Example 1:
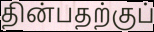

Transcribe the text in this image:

தின்பதற்குப்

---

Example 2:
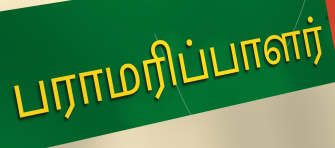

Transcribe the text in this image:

பராமரிப்பாளர்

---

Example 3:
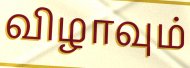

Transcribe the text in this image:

விழாவும்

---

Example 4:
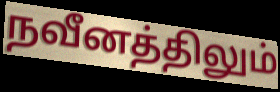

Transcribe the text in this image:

நவீனத்திலும்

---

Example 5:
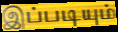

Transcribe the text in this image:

இப்படியும்